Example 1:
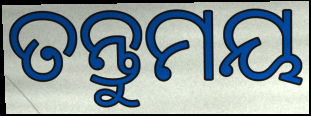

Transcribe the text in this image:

ତନ୍ତୁମୟ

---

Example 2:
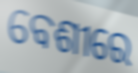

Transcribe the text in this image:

ବେଶୀରେ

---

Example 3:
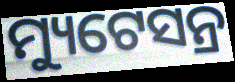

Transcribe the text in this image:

ମ୍ୟୁଟେସନ୍ର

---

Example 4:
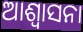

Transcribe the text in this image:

ଆଶ୍ୱାସନା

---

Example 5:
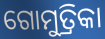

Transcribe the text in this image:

ଗୋମୁତ୍ରିକା